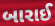
બારાઈ